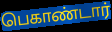
பெகாண்டார்